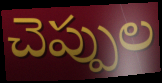
చెప్పుల